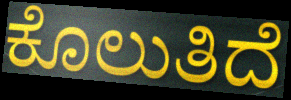
ಕೊಲುತಿದೆ